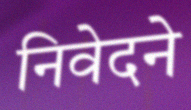
निवेदने